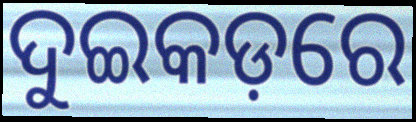
ଦୁଇକଡ଼ରେ